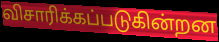
விசாரிக்கப்படுகின்றன